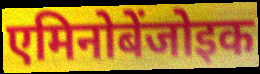
एमिनोबेंजोइक